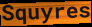
Squyres